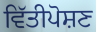
ਵਿੱਤੀਪੋਸ਼ਣ